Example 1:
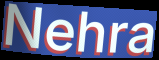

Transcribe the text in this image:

Nehra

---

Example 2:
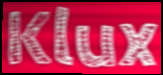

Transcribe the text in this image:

Klux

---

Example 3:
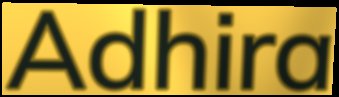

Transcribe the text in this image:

Adhira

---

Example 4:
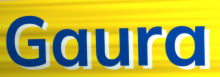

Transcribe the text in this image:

Gaura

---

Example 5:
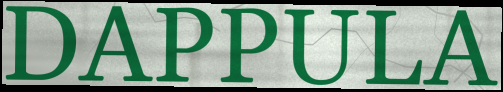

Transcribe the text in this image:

DAPPULA